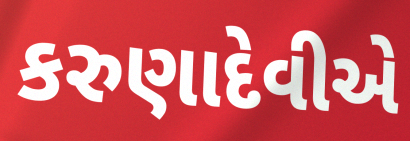
કરુણાદેવીએ